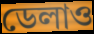
ডেলাও